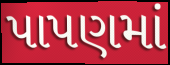
પાપણમાં